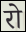
रो